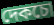
দেকচো